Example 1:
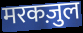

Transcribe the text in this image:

मरकज़ुल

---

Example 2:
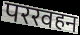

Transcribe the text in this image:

पररवहन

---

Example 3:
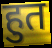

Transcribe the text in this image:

हुत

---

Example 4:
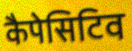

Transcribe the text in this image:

कैपेसिटिव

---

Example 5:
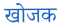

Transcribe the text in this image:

खोजक